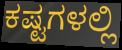
ಕಷ್ಟಗಳಲ್ಲಿ